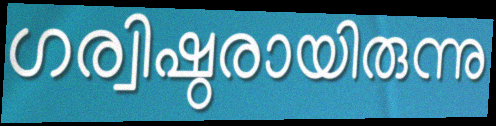
ഗര്വിഷ്ഠരായിരുന്നു